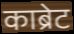
काब्रेट